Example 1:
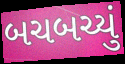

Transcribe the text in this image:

બચબચ્યું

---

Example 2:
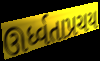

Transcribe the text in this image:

ઊર્ધ્વતાપ્રચય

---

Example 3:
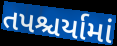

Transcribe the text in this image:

તપશ્ચર્યામાં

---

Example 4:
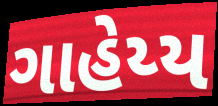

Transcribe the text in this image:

ગાહેય્ય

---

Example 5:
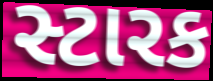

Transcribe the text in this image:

સ્ટારક